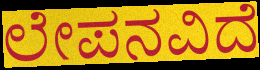
ಲೇಪನವಿದೆ